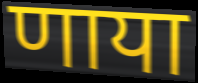
णाया